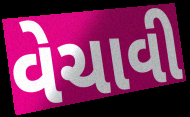
વેચાવી